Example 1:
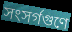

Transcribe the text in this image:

সংসর্গগুণে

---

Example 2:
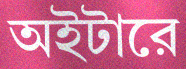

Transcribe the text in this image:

অইটারে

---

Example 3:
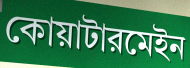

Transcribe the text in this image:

কোয়াটারমেইন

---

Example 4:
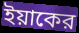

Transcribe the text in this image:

ইয়াকের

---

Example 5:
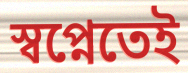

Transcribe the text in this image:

স্বপ্নেতেই